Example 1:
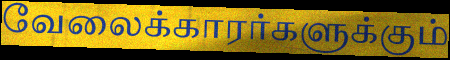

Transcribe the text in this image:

வேலைக்காரர்களுக்கும்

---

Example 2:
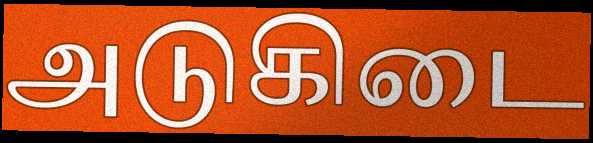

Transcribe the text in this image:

அடுகிடை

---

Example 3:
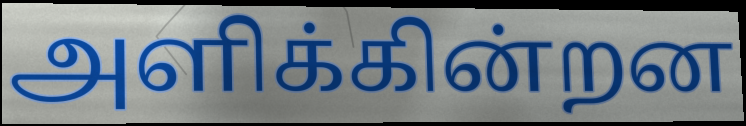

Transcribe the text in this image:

அளிக்கின்றன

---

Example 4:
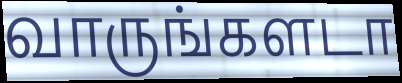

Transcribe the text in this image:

வாருங்களடா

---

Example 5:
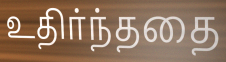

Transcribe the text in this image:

உதிர்ந்ததை